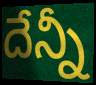
దేన్నీ